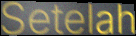
Setelah